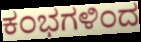
ಕಂಭಗಳಿಂದ